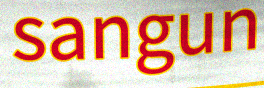
sangun